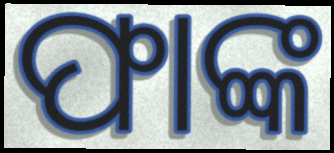
ଫାଙ୍କ